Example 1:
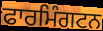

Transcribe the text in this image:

ਫਾਰਮਿੰਗਟਨ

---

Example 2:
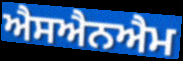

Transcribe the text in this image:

ਐਸਐਨਐਮ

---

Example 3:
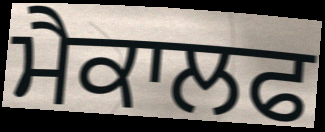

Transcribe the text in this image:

ਮੈਕਾਲਫ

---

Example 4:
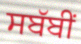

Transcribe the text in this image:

ਸਬੱਬੀਂ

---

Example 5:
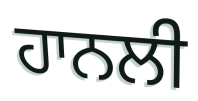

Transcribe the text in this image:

ਹਾਨਲੀ